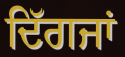
ਦਿੱਗਜਾਂ